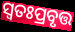
ସ୍ବତଃପ୍ରବୃତ୍ତ